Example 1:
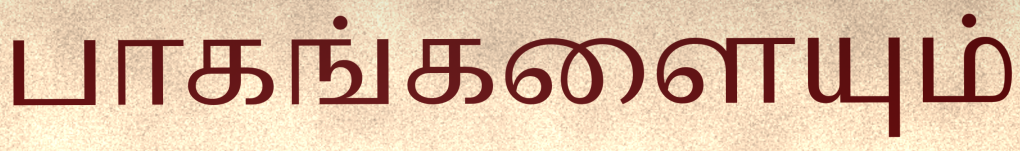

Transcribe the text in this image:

பாகங்களையும்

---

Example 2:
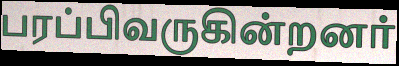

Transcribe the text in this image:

பரப்பிவருகின்றனர்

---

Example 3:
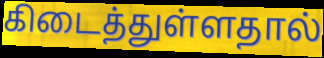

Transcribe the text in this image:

கிடைத்துள்ளதால்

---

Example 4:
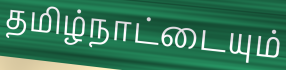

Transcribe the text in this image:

தமிழ்நாட்டையும்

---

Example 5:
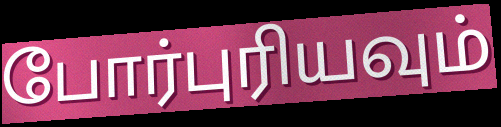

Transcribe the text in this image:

போர்புரியவும்